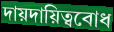
দায়দায়িত্ববোধ